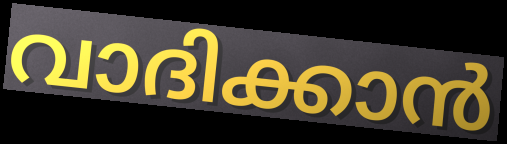
വാദിക്കാൻ